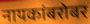
नायकांबरोबर